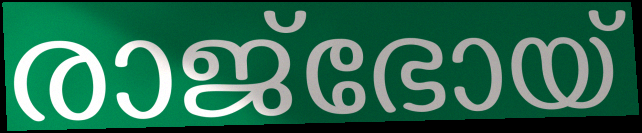
രാജ്ഭോയ്